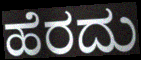
ಹೆರದು